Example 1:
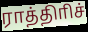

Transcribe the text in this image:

ராத்திரிச்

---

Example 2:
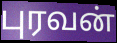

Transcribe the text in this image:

புரவன்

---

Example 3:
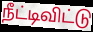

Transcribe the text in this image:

நீட்டிவிட்டு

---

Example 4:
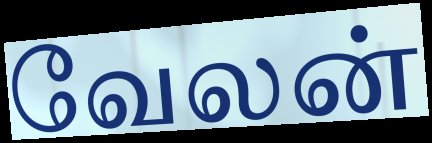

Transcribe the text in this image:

வேலன்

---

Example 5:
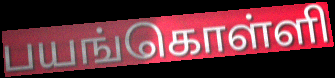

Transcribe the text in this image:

பயங்கொள்ளி